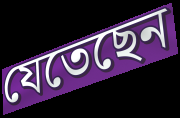
যেতেছেন